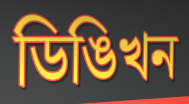
ডিঙিখন